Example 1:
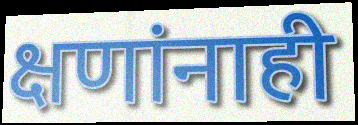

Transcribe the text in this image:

क्षणांनाही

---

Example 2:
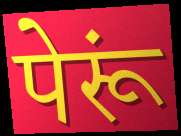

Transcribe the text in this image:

पेरूं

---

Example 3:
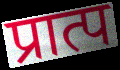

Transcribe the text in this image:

प्रात्प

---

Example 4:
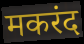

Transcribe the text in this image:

मकरंद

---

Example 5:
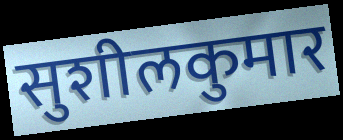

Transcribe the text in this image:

सुशीलकुमार